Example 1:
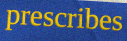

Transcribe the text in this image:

prescribes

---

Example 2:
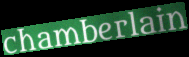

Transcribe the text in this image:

chamberlain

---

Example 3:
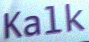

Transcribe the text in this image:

Kalk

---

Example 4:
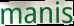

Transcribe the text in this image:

manis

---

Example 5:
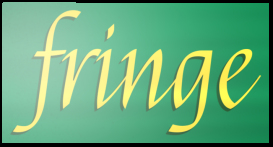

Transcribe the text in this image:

fringe